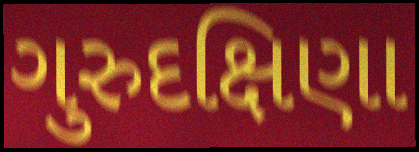
ગુરુદક્ષિણા